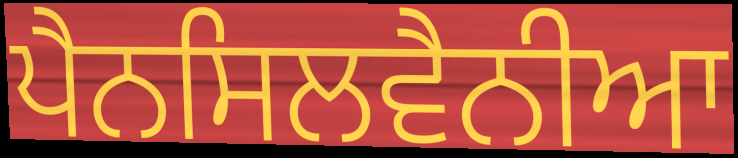
ਪੈਨਸਿਲਵੈਨੀਆ